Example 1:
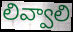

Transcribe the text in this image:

లివ్వాలి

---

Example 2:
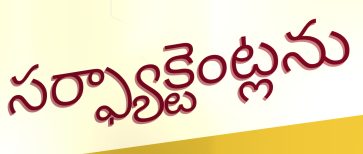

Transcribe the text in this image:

సర్ఫ్యాక్టెంట్లను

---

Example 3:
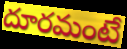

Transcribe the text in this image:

దూరమంటే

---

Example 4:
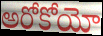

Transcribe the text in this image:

అరోకోయో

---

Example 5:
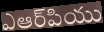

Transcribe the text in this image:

ఎఆర్‌పియు